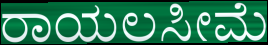
ರಾಯಲಸೀಮೆ